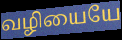
வழியையே